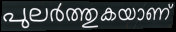
പുലർത്തുകയാണ്